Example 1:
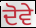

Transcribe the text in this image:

ਦੋਵੇ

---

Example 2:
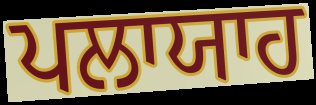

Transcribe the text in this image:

ਪਲਾਯਾਹ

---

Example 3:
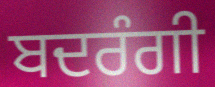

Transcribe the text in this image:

ਬਦਰੰਗੀ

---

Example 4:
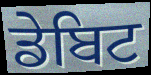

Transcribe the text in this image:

ਡੇਬਿਟ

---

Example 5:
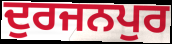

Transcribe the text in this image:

ਦੁਰਜਨਪੁਰ